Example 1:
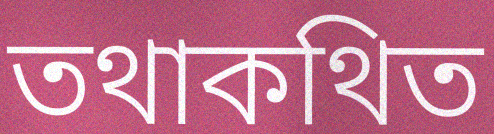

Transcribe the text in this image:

তথাকথিত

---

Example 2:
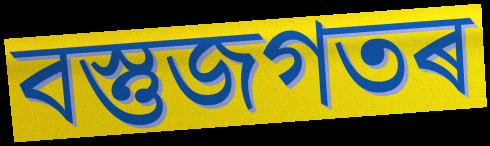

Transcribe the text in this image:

বস্তুজগতৰ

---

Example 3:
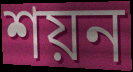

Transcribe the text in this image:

শয়ন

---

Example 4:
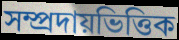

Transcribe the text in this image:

সম্প্ৰদায়ভিত্তিক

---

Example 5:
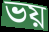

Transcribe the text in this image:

ভয়